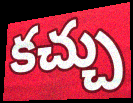
కచ్చు